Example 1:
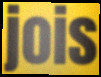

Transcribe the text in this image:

jois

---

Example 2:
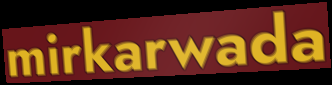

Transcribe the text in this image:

mirkarwada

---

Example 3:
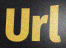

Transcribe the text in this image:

Url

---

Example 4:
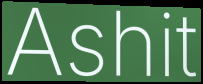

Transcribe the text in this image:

Ashit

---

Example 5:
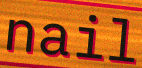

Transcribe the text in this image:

nail